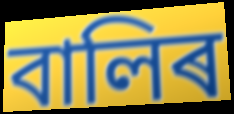
বালিৰ